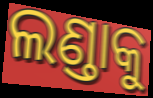
ଲଣ୍ଡାକୁ